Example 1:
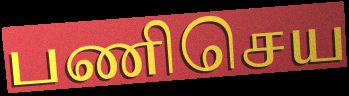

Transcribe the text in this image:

பணிசெய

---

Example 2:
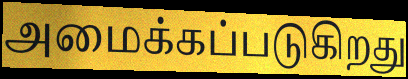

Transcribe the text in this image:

அமைக்கப்படுகிறது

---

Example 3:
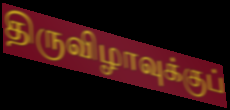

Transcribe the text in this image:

திருவிழாவுக்குப்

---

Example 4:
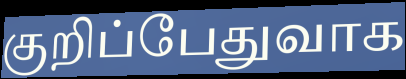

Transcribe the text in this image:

குறிப்பேதுவாக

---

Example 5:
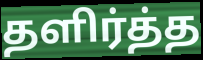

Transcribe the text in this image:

தளிர்த்த